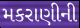
મકરાણીની